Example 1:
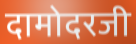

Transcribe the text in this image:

दामोदरजी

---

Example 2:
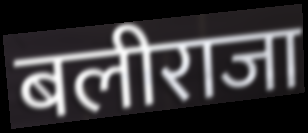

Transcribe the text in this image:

बलीराजा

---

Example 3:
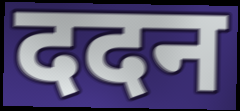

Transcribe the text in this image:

ददन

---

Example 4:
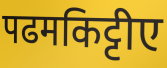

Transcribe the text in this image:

पढमकिट्टीए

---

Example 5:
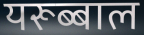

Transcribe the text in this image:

यरूब्बाल